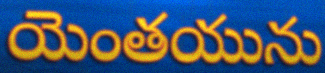
యెంతయును